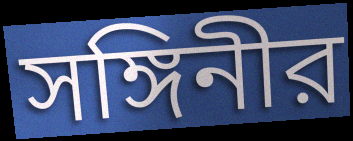
সঙ্গিনীর